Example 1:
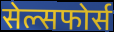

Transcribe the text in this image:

सेल्सफोर्स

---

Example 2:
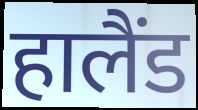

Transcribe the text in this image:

हालैंड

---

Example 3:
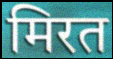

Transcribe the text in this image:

मिरत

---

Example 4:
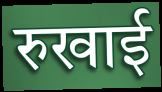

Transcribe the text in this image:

रुखाई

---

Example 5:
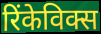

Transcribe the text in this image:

रिंकेविक्स